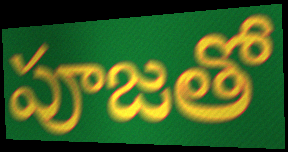
పూజతో